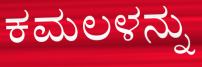
ಕಮಲಳನ್ನು